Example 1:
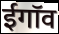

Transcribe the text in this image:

ईगॉव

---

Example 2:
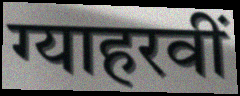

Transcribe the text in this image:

ग्याहरवीं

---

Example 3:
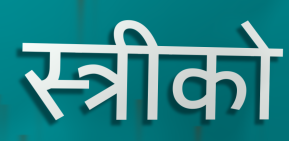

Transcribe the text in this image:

स्त्रीको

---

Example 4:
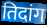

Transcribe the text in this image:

तिदांग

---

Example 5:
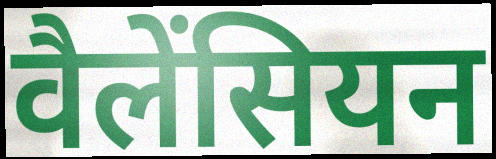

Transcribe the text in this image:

वैलेंसियन